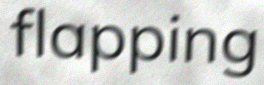
flapping